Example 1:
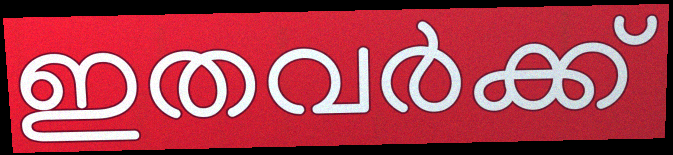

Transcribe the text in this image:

ഇതവർക്ക്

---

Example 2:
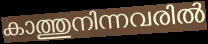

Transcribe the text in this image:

കാത്തുനിന്നവരിൽ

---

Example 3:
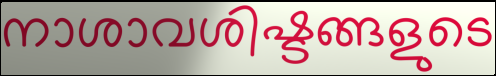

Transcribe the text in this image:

നാശാവശിഷ്ടങ്ങളുടെ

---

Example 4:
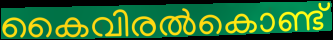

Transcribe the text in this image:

കൈവിരൽകൊണ്ട്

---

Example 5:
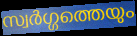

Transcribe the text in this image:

സ്വർഗ്ഗത്തെയും